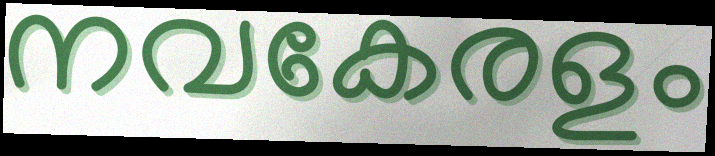
നവകേരളം